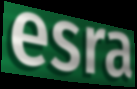
esra